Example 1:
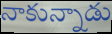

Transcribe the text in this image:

నాకున్నాడు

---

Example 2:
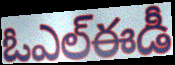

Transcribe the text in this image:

ఓఎల్ఈడీ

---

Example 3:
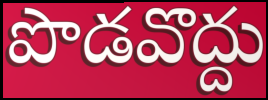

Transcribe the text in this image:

పొడవొద్దు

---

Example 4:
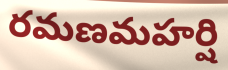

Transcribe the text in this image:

రమణమహర్షి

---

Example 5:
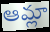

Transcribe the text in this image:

ఆమ్లా